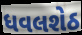
ધવલશેઠ